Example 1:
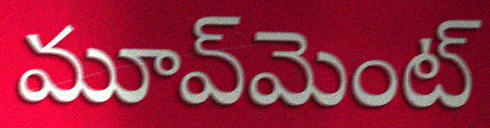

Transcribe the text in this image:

మూవ్‌మెంట్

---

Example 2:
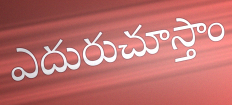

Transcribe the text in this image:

ఎదురుచూస్తాం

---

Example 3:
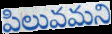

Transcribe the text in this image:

పిలువమని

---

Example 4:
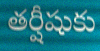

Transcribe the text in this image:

తర్షీషుకు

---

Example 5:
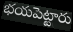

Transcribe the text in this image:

భయపెట్టారు